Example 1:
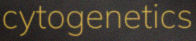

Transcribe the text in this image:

cytogenetics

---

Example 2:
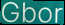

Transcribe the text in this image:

Gbor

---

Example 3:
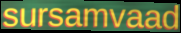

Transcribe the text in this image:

sursamvaad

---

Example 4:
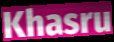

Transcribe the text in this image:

Khasru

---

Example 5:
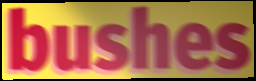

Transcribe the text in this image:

bushes